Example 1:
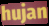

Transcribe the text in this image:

hujan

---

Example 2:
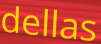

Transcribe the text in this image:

dellas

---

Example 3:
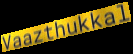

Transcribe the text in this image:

Vaazthukkal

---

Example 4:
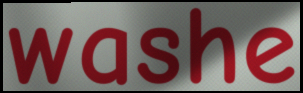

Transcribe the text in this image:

washe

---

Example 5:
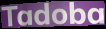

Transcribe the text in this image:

Tadoba